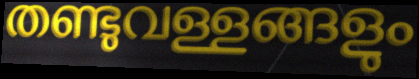
തണ്ടുവള്ളങ്ങളും